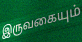
இருவகையும்